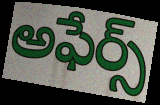
అఫేర్స్